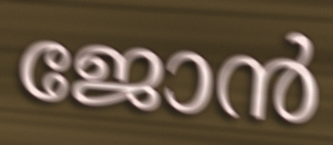
ജോൻ